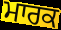
ਮਾਰਕ